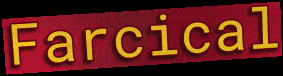
Farcical